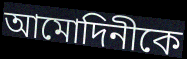
আমোদিনীকে